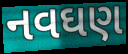
નવઘણ